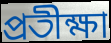
প্ৰতীক্ষা